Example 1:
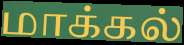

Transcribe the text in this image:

மாக்கல்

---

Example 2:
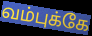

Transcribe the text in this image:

வம்புக்கே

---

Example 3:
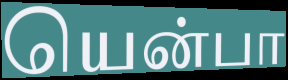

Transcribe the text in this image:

யென்பா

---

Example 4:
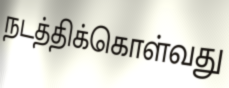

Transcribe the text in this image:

நடத்திக்கொள்வது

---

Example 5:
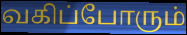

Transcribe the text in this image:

வகிப்போரும்